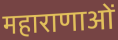
महाराणाओं